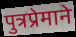
पुत्रप्रेमाने